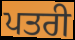
ਪਤਰੀ